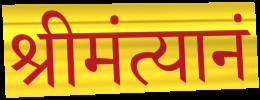
श्रीमंत्यानं